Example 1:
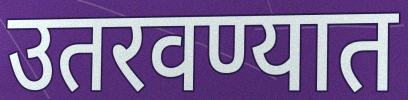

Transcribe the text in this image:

उतरवण्यात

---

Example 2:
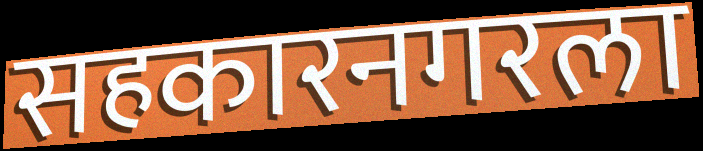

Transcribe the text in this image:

सहकारनगरला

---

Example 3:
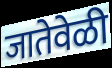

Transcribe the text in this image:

जातेवेळी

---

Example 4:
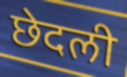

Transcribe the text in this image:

छेदली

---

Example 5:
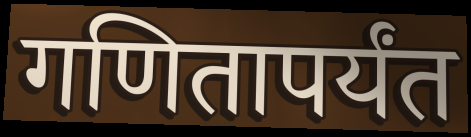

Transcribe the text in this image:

गणितापर्यंत